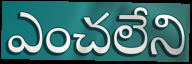
ఎంచలేని